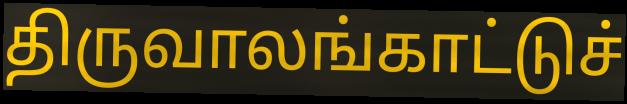
திருவாலங்காட்டுச்